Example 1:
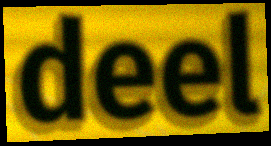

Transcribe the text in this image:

deel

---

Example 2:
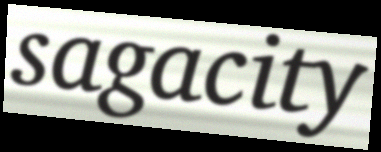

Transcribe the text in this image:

sagacity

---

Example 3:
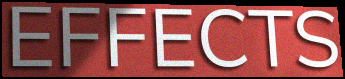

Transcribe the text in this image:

EFFECTS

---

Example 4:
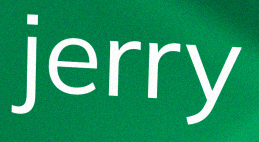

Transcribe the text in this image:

jerry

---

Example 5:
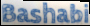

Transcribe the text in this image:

Bashabi